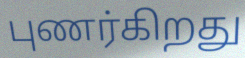
புணர்கிறது